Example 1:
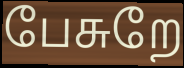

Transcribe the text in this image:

பேசுறே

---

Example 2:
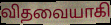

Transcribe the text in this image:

விதவையாகி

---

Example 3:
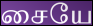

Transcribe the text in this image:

சையே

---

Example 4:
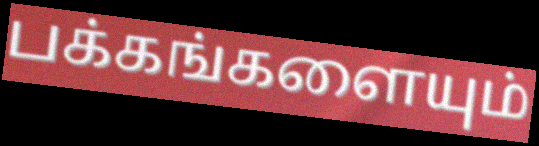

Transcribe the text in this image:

பக்கங்களையும்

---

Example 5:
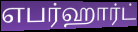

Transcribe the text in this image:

எபர்ஹார்ட்